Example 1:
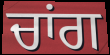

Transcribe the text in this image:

ਚਾਂਗ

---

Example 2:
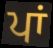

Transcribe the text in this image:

ਪਾਂ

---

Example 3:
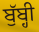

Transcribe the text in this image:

ਬੁੱਬ੍ਹੀ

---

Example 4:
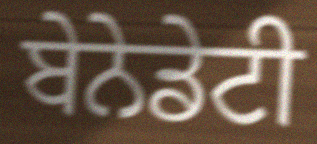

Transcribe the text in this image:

ਬੇਨੇਡੇਟੀ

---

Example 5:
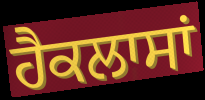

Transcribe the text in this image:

ਹੈਕਲਾਸਾਂ